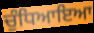
ਚੁੰਧਿਆਇਆ